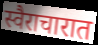
स्वैराचारात